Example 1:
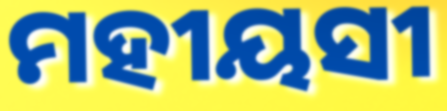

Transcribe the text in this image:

ମହୀୟସୀ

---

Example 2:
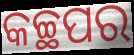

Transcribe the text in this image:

କଚ୍ଛପର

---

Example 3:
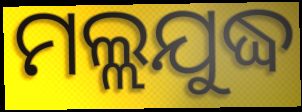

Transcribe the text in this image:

ମଲ୍ଲଯୁଦ୍ଧ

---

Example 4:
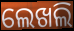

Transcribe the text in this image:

ଲେଖଲି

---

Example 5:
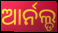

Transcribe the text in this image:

ଆର୍ନଲ୍ଡ